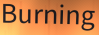
Burning